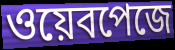
ওয়েবপেজে